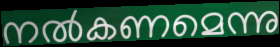
നൽകണമെന്നു